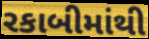
રકાબીમાંથી